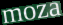
moza